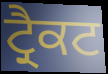
ਟ੍ਰੈਕਟ